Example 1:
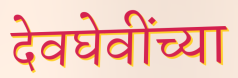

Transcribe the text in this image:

देवघेवींच्या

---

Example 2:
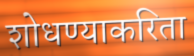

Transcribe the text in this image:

शोधण्याकरिता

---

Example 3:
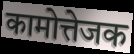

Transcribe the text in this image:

कामोत्तेजक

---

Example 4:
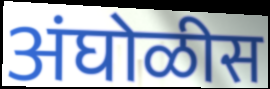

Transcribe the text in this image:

अंघोळीस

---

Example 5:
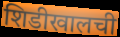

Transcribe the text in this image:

शिडीखालची